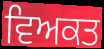
ਵਿਅਕਤ